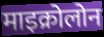
माइक्रोलोन